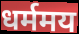
धर्ममय